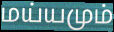
மய்யமும்